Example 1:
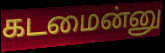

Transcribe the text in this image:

கடமைன்னு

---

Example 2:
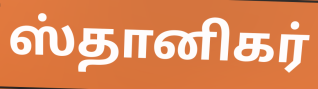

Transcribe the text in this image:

ஸ்தானிகர்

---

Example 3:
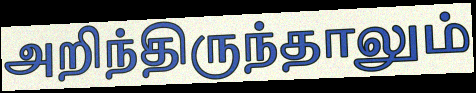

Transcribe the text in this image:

அறிந்திருந்தாலும்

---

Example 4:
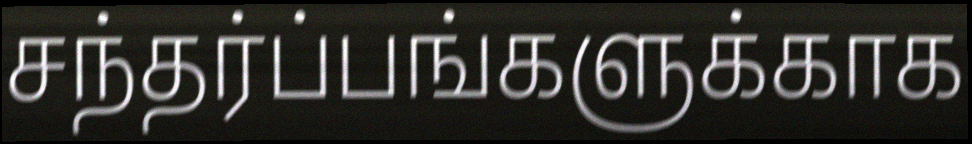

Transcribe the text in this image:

சந்தர்ப்பங்களுக்காக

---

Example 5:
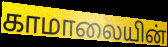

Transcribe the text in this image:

காமாலையின்